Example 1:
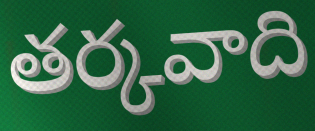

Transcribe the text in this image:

తర్కవాది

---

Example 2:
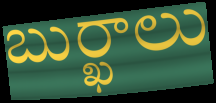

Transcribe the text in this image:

బుర్ఖాలు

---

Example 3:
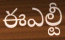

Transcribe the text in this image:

ఈఎల్టీ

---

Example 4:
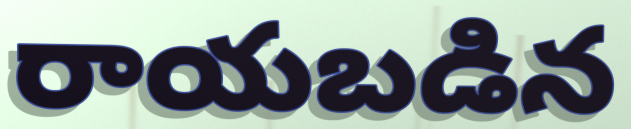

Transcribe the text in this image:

రాయబడిన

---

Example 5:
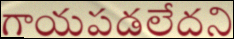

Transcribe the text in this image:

గాయపడలేదని